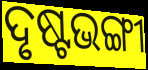
ଦୃଷ୍ଟଭଙ୍ଗୀ